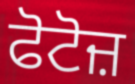
ਫੋਟੋਜ਼